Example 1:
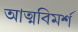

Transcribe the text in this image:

আত্মবিমর্শ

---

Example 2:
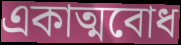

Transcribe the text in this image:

একাত্মবোধ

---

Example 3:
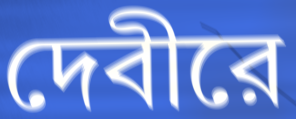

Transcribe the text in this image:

দেবীরে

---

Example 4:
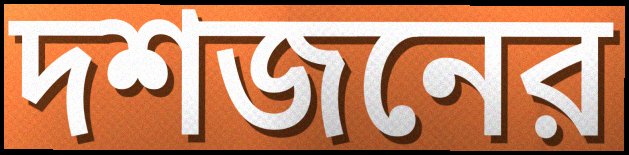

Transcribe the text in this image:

দশজনের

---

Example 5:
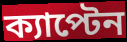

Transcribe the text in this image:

ক্যাপ্টেন